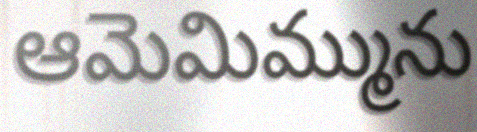
ఆమెమిమ్మును